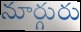
నూర్గురు